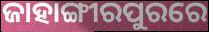
ଜାହାଙ୍ଗୀରପୁରରେ